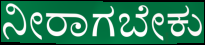
ನೀರಾಗಬೇಕು